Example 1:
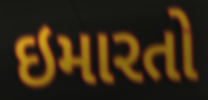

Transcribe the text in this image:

ઇમારતો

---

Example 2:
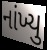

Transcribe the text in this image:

નાંખ્યુ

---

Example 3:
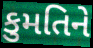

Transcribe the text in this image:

કુમતિને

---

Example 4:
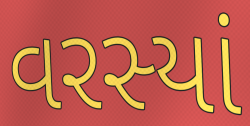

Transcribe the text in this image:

વરસ્યાં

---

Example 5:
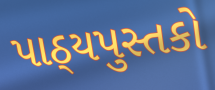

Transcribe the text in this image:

પાઠ્યપુસ્તકો